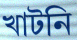
খাটনি